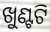
ଖୁଣ୍ଟଟି